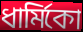
ধার্মিকো